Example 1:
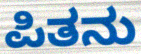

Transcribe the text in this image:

ಪಿತನು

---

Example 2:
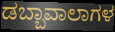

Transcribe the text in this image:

ಡಬ್ಬಾವಾಲಾಗಳ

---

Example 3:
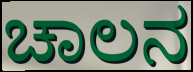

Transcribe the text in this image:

ಚಾಲನ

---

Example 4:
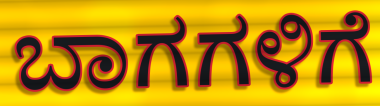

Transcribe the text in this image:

ಬಾಗಗಳಿಗೆ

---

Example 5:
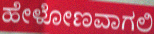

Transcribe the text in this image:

ಹೇಳೋಣವಾಗಲಿ